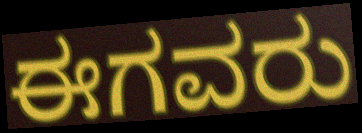
ಈಗವರು